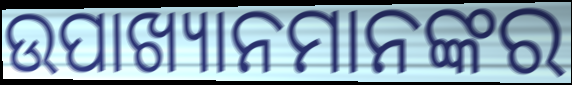
ଉପାଖ୍ୟାନମାନଙ୍କର